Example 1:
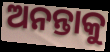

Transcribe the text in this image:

ଅନନ୍ତାକୁ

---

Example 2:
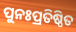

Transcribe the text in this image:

ପୁନଃପ୍ରତିଷ୍ଠିତ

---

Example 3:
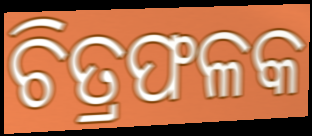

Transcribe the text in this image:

ଚିତ୍ରଫଳକ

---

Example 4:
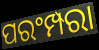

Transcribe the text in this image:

ପରଂମ୍ପରା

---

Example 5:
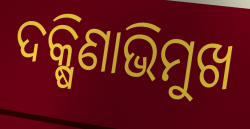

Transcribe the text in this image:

ଦକ୍ଷିଣାଭିମୁଖ